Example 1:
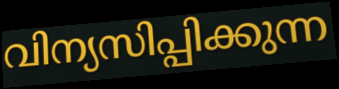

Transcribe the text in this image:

വിന്യസിപ്പിക്കുന്ന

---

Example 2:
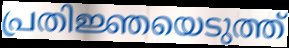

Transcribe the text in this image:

പ്രതിജ്ഞയെടുത്ത്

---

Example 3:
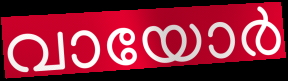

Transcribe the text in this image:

വായോർ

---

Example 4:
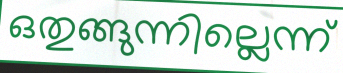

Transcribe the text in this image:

ഒതുങ്ങുന്നില്ലെന്ന്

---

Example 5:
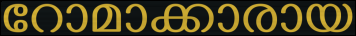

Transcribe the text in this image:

റോമാക്കാരായ